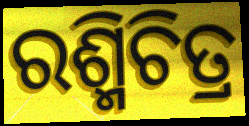
ରଶ୍ମିଚିତ୍ର